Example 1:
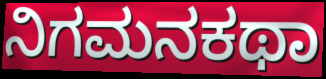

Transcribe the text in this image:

ನಿಗಮನಕಥಾ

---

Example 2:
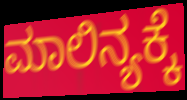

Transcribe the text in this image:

ಮಾಲಿನ್ಯಕ್ಕೆ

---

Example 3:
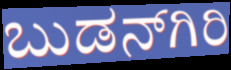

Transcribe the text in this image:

ಬುಡನ್‍ಗಿರಿ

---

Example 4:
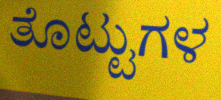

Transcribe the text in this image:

ತೊಟ್ಟುಗಳ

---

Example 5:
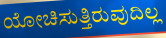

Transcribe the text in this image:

ಯೋಚಿಸುತ್ತಿರುವುದಿಲ್ಲ